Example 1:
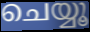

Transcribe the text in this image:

ചെയ്യൂ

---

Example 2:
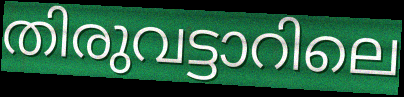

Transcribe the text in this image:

തിരുവട്ടാറിലെ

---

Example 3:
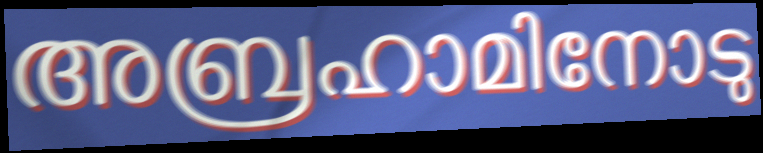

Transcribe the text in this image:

അബ്രഹാമിനോടു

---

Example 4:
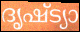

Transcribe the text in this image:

ദൃഷ്ട്യാ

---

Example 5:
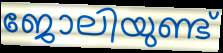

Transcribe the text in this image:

ജോലിയുണ്ട്